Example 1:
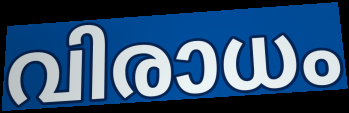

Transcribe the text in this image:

വിരാധം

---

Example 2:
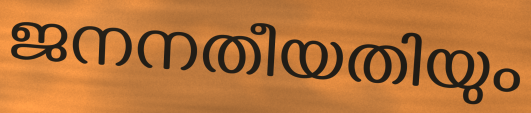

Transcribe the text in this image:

ജനനതീയതിയും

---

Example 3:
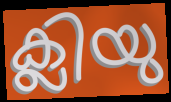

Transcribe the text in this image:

ക്ലിയു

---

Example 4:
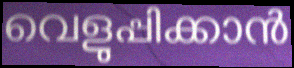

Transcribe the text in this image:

വെളുപ്പിക്കാൻ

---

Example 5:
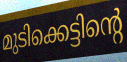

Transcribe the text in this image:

മുടിക്കെട്ടിന്റെ